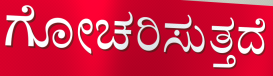
ಗೋಚರಿಸುತ್ತದೆ